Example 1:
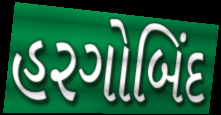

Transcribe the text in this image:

હરગોબિંદ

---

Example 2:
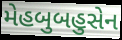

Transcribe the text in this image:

મેહબુબહુસેન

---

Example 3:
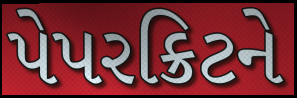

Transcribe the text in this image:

પેપરક્રિટને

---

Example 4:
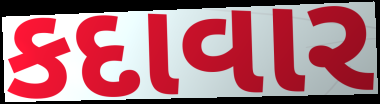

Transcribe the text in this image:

કદાવાર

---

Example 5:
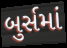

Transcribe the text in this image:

બુર્સમાં